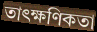
তাৎক্ষণিকতা